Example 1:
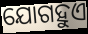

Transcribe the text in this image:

ଯୋଗହୁଏ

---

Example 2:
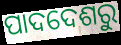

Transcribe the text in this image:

ପାଦଦେଶରୁ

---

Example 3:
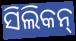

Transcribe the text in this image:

ସିଲିକନ୍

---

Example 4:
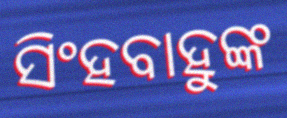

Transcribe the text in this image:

ସିଂହବାହୁଙ୍କ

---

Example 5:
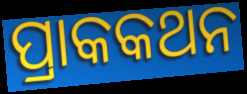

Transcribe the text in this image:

ପ୍ରାକକଥନ